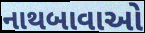
નાથબાવાઓ